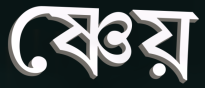
ষ্ণেয়